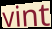
vint